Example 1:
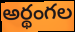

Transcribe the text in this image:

అర్థంగల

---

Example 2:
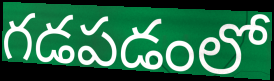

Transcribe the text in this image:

గడపడంలో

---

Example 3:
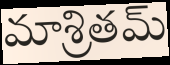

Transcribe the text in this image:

మాశ్రితమ్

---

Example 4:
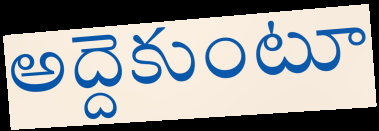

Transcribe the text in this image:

అద్దెకుంటూ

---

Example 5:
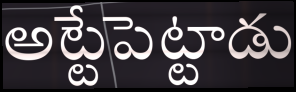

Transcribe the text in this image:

అట్టేపెట్టాడు